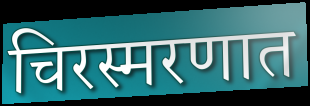
चिरस्मरणात